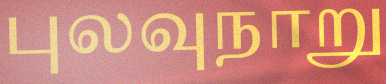
புலவுநாறு